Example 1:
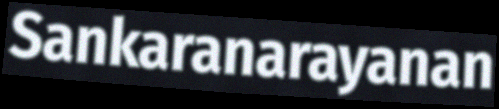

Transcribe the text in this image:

Sankaranarayanan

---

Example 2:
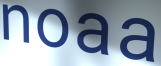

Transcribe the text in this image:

noaa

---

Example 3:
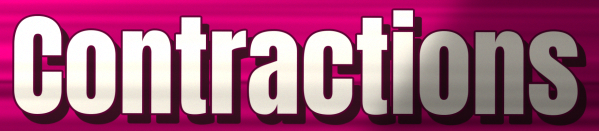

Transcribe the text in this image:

Contractions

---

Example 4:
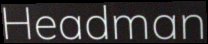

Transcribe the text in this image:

Headman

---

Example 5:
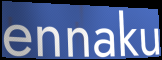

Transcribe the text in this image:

ennaku